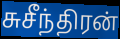
சுசீந்திரன்